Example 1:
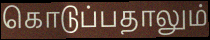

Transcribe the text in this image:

கொடுப்பதாலும்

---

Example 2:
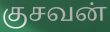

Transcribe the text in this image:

குசவன்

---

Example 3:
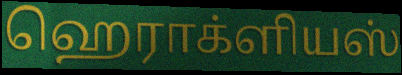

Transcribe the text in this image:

ஹெராக்ளியஸ்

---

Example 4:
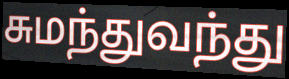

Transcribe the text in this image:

சுமந்துவந்து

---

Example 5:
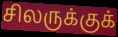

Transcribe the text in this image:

சிலருக்குக்